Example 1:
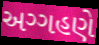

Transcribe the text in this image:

અગ્ગહણે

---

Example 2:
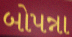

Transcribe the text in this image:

બોપન્ના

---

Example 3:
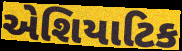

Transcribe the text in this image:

એશિયાટિક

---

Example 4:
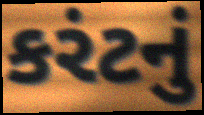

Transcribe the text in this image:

કરંટનું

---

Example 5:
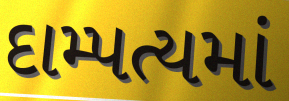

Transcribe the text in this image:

દામ્પત્યમાં